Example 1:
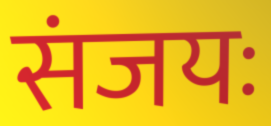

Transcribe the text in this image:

संजयः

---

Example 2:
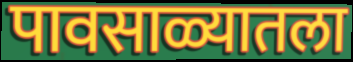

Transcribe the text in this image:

पावसाळ्यातला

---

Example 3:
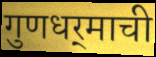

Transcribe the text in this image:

गुणधर्माची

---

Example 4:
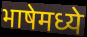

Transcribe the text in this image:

भाषेमध्ये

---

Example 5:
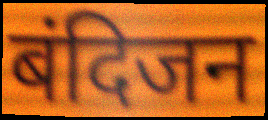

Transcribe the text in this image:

बंदिजन